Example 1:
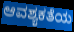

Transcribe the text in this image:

ಆವಶ್ಯಕತೆಯ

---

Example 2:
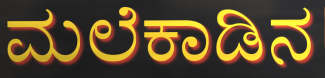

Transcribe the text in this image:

ಮಲೆಕಾಡಿನ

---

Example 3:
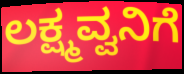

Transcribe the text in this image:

ಲಕ್ಷ್ಮವ್ವನಿಗೆ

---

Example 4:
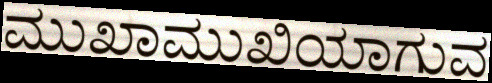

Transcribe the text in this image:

ಮುಖಾಮುಖಿಯಾಗುವ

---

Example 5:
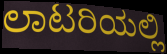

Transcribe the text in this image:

ಲಾಟರಿಯಲ್ಲಿ